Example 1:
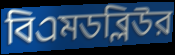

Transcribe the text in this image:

বিএমডব্লিউর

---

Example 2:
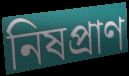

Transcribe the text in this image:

নিষপ্রাণ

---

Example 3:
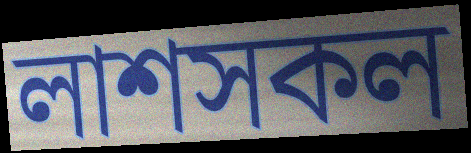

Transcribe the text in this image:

লাশসকল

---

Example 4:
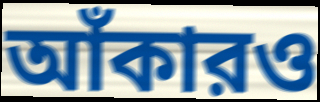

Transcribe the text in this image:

আঁকারও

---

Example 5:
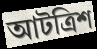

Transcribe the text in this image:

আটত্রিশ